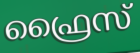
ഫ്രൈസ്